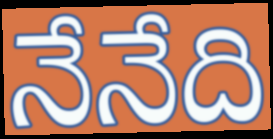
నేనేది